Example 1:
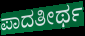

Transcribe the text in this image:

ಪಾದತೀರ್ಥ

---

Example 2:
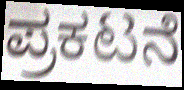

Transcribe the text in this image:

ಪ್ರಕಟನೆ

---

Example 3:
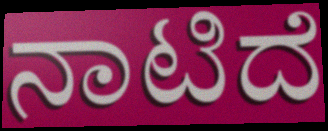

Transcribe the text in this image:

ನಾಟಿದೆ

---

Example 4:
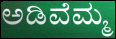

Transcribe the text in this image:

ಅಡಿವೆಮ್ಮ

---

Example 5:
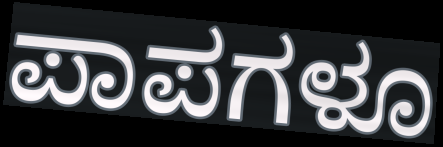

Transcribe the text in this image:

ಪಾಪಗಳೂ